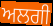
ਅਲਗੀ